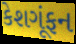
કેશગૂંફન